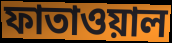
ফাতাওয়াল